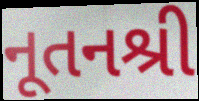
નૂતનશ્રી